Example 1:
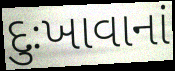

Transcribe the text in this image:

દુઃખાવાનાં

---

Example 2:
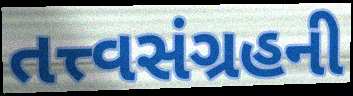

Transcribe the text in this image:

તત્ત્વસંગ્રહની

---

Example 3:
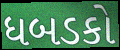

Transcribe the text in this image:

ધબડકો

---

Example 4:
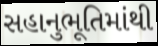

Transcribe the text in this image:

સહાનુભૂતિમાંથી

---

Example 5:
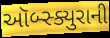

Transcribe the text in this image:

ઑબ્સ્ક્યુરાની